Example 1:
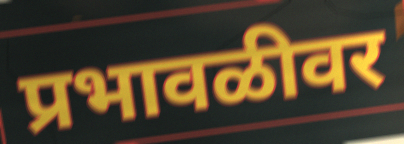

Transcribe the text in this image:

प्रभावळीवर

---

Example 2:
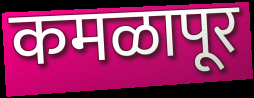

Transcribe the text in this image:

कमळापूर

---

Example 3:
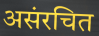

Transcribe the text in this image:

असंरचित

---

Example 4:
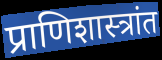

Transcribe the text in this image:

प्राणिशास्त्रांत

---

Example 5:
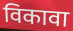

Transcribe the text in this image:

विकावा